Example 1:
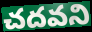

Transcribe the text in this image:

చదవని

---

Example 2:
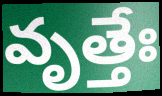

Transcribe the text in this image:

వృత్తేః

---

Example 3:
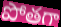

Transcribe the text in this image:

పోతగా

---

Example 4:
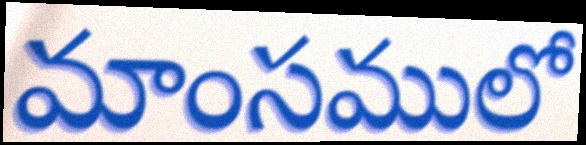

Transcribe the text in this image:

మాంసములో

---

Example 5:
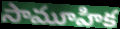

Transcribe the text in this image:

సామూహిక